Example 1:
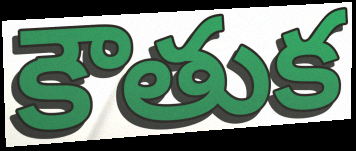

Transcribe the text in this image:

కౌతుక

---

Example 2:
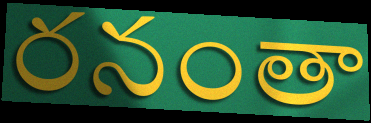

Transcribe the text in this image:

రనంతా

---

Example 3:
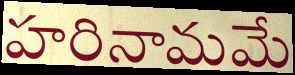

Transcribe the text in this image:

హరినామమే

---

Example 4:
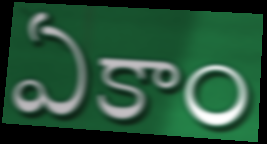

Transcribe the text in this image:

ఏకాం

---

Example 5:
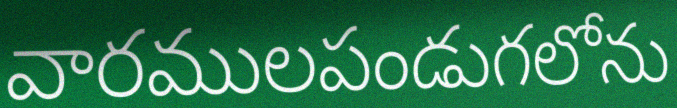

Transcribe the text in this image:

వారములపండుగలోను